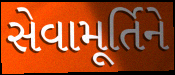
સેવામૂર્તિને